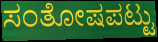
ಸಂತೋಷಪಟ್ಟು